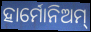
ହାର୍ମୋନିଅମ୍